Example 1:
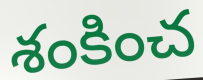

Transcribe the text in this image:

శంకించ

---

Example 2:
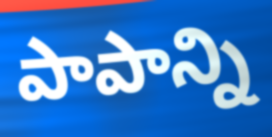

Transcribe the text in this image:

పాపాన్ని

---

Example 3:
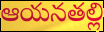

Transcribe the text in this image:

ఆయనతల్లి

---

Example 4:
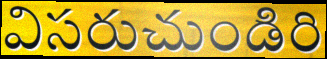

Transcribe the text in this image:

విసరుచుండిరి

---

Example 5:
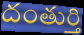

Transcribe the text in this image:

దంతుర్తి